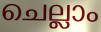
ചെല്ലാം